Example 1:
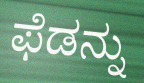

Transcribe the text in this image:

ಫೆಡನ್ನು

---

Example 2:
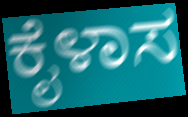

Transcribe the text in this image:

ಕೈಳಾಸ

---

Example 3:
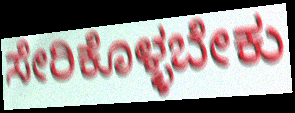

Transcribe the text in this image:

ಸೇರಿಕೊಳ್ಳಬೇಕು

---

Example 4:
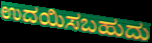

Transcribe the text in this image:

ಉದಯಿಸಬಹುದು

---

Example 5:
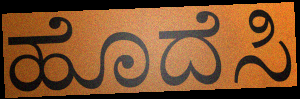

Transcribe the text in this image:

ಹೊದೆಸಿ